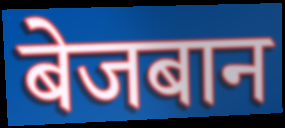
बेजबान